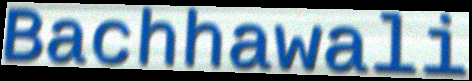
Bachhawali